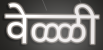
वेळ्ळी